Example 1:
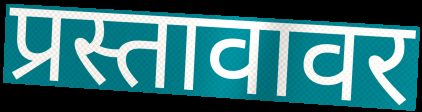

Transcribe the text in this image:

प्रस्तावावर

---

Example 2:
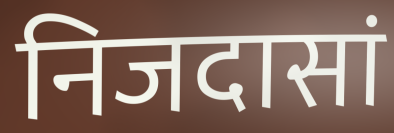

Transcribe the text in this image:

निजदासां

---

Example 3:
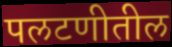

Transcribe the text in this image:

पलटणीतील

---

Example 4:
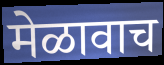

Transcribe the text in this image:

मेळावाच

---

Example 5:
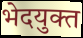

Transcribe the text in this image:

भेदयुक्त